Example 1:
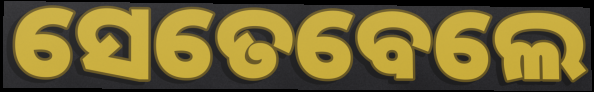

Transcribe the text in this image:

ସେତେବେଲେ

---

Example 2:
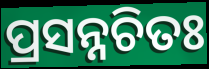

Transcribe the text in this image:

ପ୍ରସନ୍ନଚିତଃ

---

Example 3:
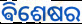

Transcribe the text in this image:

ଵିଶେଷର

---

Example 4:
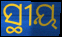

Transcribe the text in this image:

ସ୍ଥୀୟ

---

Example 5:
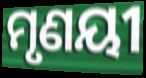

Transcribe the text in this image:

ମୃଣୟୀ